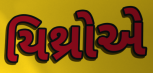
યિથ્રોએ